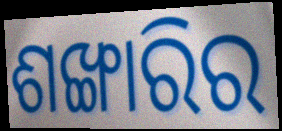
ଶଙ୍ଖାରିର